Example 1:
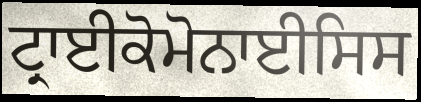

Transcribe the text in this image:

ਟ੍ਰਾਈਕੋਮੋਨਾਈਸਿਸ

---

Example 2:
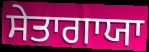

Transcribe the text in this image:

ਸੇਤਾਗਾਯਾ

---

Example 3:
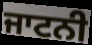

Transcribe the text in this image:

ਜਾਟਨੀ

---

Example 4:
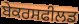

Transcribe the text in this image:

ਬੇਕਰਸਫੀਲਡ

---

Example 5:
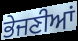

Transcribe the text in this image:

ਭੇਜਣੀਆਂ